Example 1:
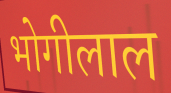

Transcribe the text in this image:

भोगीलाल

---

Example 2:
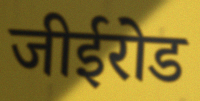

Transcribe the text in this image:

जीईरोड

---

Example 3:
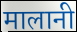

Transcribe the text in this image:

मालानी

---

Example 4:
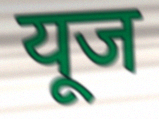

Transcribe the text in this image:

यूज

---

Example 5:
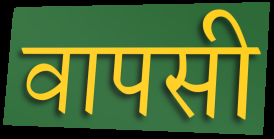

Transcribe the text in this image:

वापसी